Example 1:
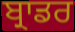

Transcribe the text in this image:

ਬ੍ਰਾਡਰ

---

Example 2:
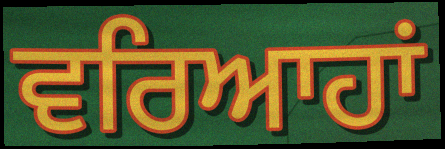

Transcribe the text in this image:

ਵਰਿਆਹਾਂ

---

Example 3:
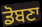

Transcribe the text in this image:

ਡੋਬਣਾ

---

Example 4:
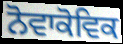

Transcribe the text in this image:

ਨੋਵਾਕੋਵਿਕ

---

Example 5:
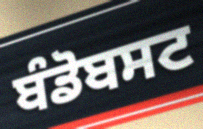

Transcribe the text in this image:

ਬੰਡੋਬਸਟ